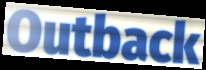
Outback